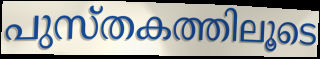
പുസ്തകത്തിലൂടെ